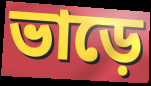
ভাড়ে